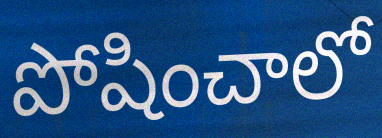
పోషించాలో